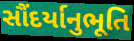
સૌંદર્યાનુભૂતિ